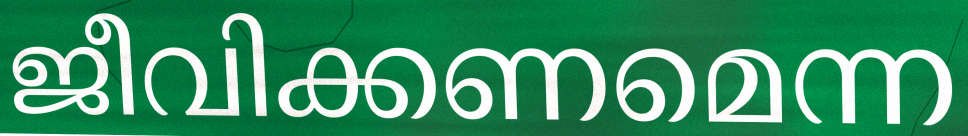
ജീവിക്കണമെന്ന